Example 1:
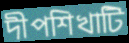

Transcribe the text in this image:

দীপশিখাটি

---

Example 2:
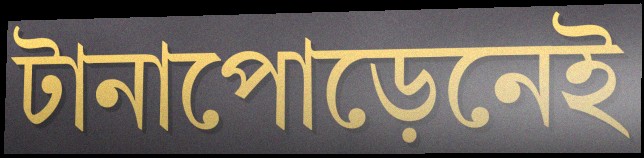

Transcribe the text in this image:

টানাপোড়েনেই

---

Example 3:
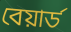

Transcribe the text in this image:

বেয়ার্ড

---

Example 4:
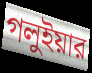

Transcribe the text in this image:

গলুইয়ার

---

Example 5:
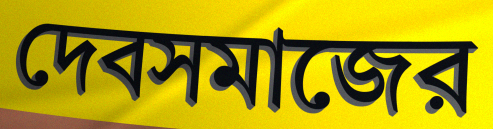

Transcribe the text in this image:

দেবসমাজের